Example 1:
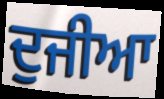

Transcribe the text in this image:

ਦੁਜੀਆ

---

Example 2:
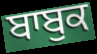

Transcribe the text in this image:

ਬਾਬੁਕ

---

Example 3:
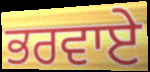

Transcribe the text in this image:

ਭਰਵਾਏ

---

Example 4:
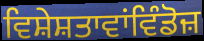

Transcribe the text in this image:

ਵਿਸ਼ੇਸ਼ਤਾਵਾਂਵਿੰਡੋਜ਼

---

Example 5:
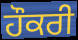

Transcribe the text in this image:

ਹੌਕਰੀ